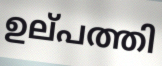
ഉല്‌പത്തി